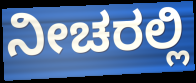
ನೀಚರಲ್ಲಿ